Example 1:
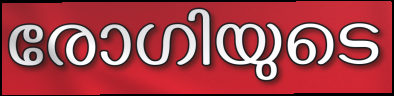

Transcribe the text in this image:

രോഗിയുടെ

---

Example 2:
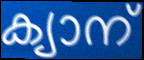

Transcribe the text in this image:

ക്യാന്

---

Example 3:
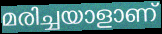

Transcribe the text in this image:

മരിച്ചയാളാണ്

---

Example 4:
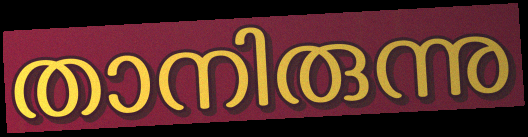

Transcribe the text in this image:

താനിരുന്നു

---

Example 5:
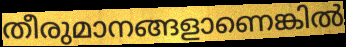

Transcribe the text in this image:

തീരുമാനങ്ങളാണെങ്കിൽ